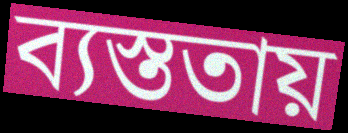
ব্যস্ততায়